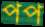
পপ